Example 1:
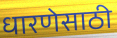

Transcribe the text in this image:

धारणेसाठी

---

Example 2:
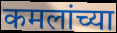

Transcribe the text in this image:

कमलांच्या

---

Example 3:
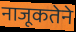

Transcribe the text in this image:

नाजूकतेने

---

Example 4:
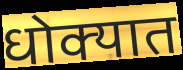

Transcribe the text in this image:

धोक्‍यात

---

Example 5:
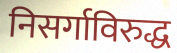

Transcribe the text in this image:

निसर्गाविरुद्ध